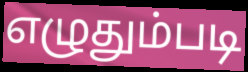
எழுதும்படி